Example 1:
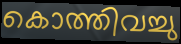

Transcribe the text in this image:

കൊത്തിവച്ചു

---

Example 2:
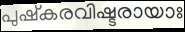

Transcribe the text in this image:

പുഷ്കരവിഷ്ടരായാഃ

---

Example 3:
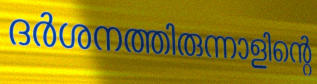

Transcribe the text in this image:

ദർശനത്തിരുന്നാളിന്റെ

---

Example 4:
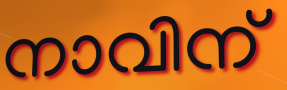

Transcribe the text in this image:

നാവിന്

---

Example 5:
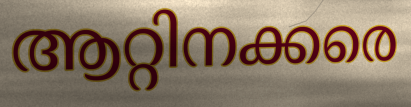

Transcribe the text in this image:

ആറ്റിനക്കരെ